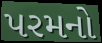
પરમનો